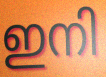
ഇനി